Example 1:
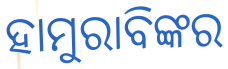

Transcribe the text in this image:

ହାମୁରାବିଙ୍କର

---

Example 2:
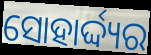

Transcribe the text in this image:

ସୋହାର୍ଦ୍ଦ୍ୟର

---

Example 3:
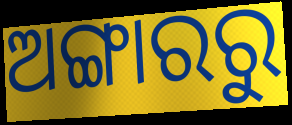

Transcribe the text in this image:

ଅଙ୍ଗାରରୁ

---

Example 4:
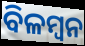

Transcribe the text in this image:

ବିଳମ୍ବନ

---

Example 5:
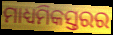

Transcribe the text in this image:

ମାଧ୍ୟମିକସ୍ତରର